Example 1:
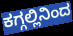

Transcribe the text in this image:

ಕಗ್ಗಲ್ಲಿನಿಂದ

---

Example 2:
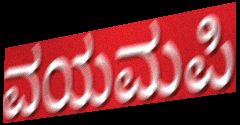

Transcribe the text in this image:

ವಯಮಪಿ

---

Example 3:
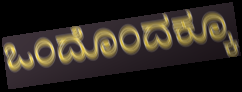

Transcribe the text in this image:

ಒಂದೊಂದಕ್ಕೂ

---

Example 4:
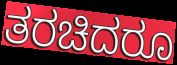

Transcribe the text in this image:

ತರಚಿದರೂ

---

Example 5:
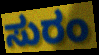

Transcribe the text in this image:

ಸುರಂ